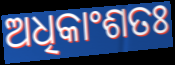
ଅଧିକାଂଶତଃ